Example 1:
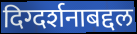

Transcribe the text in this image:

दिग्दर्शनाबद्दल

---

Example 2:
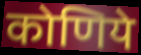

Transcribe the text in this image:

कोणिये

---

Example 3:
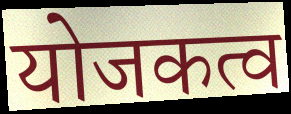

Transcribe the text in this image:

योजकत्व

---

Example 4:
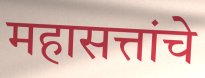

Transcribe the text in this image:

महासत्तांचे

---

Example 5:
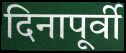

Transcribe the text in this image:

दिनापूर्वी